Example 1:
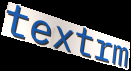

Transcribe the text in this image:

textrm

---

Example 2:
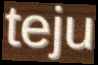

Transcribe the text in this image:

teju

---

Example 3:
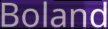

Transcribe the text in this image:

Boland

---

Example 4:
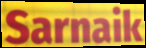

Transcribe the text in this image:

Sarnaik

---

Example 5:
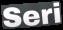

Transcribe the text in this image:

Seri